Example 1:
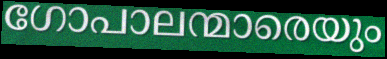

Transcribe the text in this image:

ഗോപാലന്മാരെയും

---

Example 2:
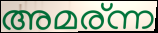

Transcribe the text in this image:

അമര്ന്ന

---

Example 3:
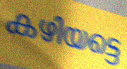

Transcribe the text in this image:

കഴിയട്ടെ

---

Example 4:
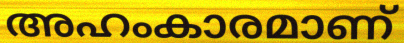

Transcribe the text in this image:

അഹംകാരമാണ്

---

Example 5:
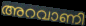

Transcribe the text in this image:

അറവാണി